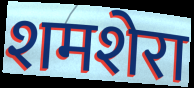
शमशेरा